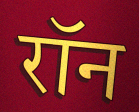
रॉन